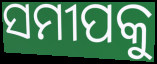
ସମୀପକୁ